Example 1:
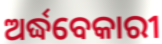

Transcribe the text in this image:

ଅର୍ଦ୍ଧବେକାରୀ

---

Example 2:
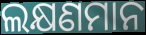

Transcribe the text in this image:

ଲକ୍ଷଣମାନ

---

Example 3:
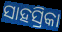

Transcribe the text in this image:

ସାହସ୍ରିକା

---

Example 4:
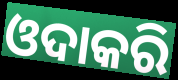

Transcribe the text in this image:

ଓଦାକରି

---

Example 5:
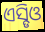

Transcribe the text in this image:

ଏସ୍ଡିଓ